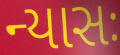
ન્યાસઃ